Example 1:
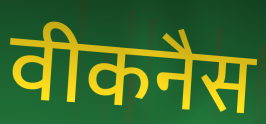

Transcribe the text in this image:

वीकनैस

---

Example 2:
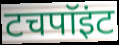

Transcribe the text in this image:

टचपॉइंट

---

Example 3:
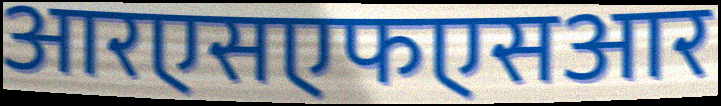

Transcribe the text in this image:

आरएसएफएसआर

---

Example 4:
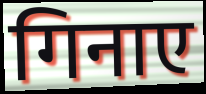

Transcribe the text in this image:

गिनाए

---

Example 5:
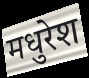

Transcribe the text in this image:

मधुरेश